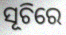
ସୂଚିରେ